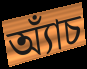
অ্যাঁচ